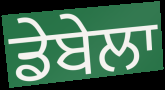
ਡੇਬੇਲਾ